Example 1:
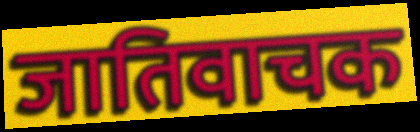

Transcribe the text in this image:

जातिवाचक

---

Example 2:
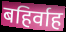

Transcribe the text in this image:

बहिर्वाह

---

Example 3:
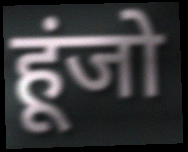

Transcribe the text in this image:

हूंजो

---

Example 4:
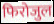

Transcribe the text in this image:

फिरोजुल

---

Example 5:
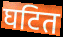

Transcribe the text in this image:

घटित